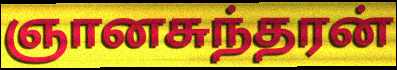
ஞானசுந்தரன்